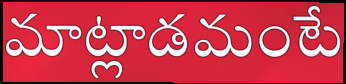
మాట్లాడమంటే